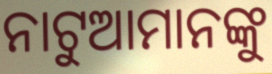
ନାଟୁଆମାନଙ୍କୁ